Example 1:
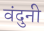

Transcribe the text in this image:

वंदुनी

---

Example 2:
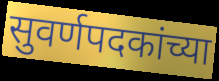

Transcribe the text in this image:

सुवर्णपदकांच्या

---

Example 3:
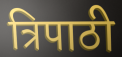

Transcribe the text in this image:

त्रिपाठी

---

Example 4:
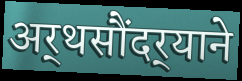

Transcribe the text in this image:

अर्थसौंदर्याने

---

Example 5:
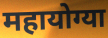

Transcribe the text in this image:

महायोग्या